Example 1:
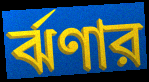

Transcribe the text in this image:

র্ঝণার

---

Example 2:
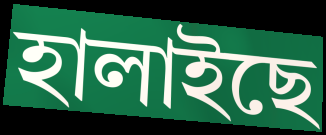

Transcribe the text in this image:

হালাইছে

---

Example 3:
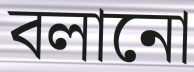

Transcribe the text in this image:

বলানো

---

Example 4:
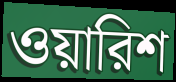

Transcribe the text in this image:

ওয়ারিশ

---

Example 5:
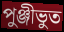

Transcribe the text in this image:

পুঞ্জীভুত